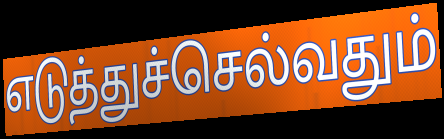
எடுத்துச்செல்வதும்